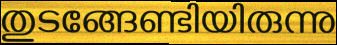
തുടങ്ങേണ്ടിയിരുന്നു